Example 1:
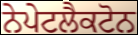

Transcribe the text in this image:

ਨੇਪੇਟਲੈਕਟੋਨ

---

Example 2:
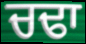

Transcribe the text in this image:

ਚਢਾ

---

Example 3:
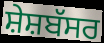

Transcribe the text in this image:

ਸ਼ੇਸ਼ਬੱਸਰ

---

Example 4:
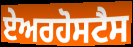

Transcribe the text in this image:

ਏਅਰਹੋਸਟੈਸ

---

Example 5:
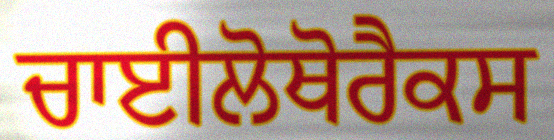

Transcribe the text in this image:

ਚਾਈਲੋਥੋਰੈਕਸ